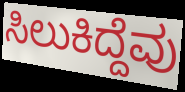
ಸಿಲುಕಿದ್ದೆವು